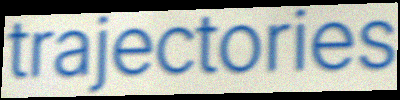
trajectories